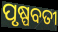
ପୃଷ୍ପବତୀ